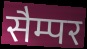
सैम्पर